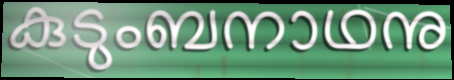
കുടുംബനാഥനു